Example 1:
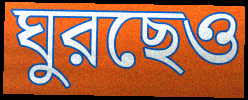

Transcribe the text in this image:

ঘুরছেও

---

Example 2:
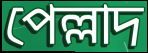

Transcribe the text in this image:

পেল্লাদ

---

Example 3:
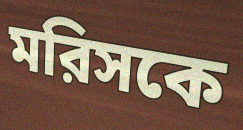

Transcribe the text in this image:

মরিসকে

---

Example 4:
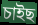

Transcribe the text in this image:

চাইছ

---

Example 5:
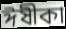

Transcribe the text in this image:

ঈষীকা